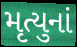
મૃત્યુનાં